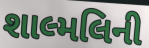
શાલ્મલિની